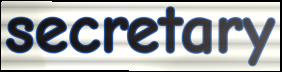
secretary